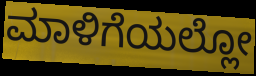
ಮಾಳಿಗೆಯಲ್ಲೋ